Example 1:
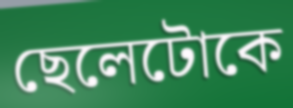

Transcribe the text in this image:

ছেলেটোকে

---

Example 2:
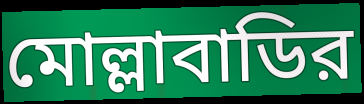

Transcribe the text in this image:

মোল্লাবাডির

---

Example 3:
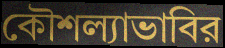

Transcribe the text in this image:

কৌশল্যাভাবির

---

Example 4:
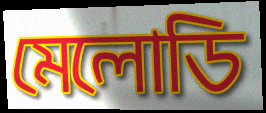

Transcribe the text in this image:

মেলোডি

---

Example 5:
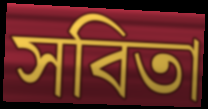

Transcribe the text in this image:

সবিতা